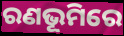
ରଣଭୂମିରେ